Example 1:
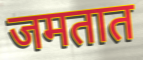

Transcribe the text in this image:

जमतात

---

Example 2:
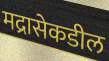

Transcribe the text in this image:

मद्रासेकडील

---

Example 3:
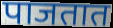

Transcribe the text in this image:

पाजतात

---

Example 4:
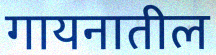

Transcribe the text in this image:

गायनातील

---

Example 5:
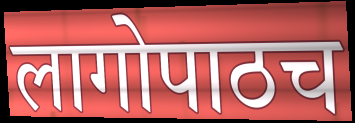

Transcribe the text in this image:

लागोपाठच